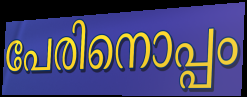
പേരിനൊപ്പം